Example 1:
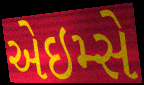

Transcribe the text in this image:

એઇમ્સે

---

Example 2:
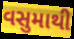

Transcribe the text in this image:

વસુમાથી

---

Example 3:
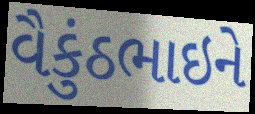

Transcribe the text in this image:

વૈકુંઠભાઇને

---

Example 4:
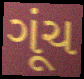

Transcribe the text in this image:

ગૂંચ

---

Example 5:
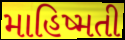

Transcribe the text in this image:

માહિષ્મતી